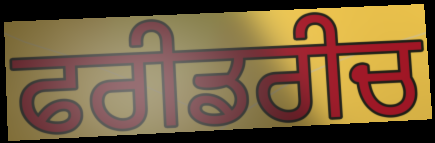
ਫਰੀਡਰੀਚ